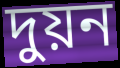
দুয়ন